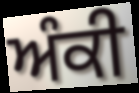
ਅੰਕੀ